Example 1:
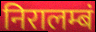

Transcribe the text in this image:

निरालम्बं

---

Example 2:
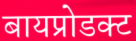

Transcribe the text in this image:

बायप्रोडक्ट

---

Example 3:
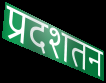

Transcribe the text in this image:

प्रदशतन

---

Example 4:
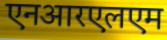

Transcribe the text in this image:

एनआरएलएम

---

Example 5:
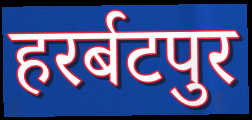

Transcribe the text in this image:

हरर्बटपुर